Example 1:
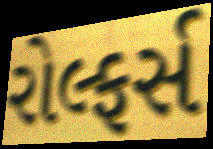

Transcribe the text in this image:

રોલ્ફર્સ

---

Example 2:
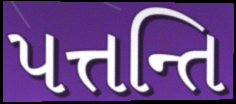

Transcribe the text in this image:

પત્તન્તિ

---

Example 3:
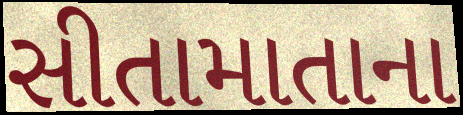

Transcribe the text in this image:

સીતામાતાના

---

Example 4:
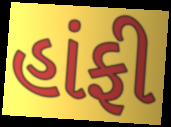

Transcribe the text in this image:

હાંફી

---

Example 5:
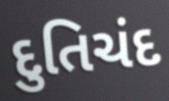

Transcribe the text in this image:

દુતિચંદ